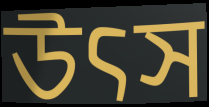
উত্‍স